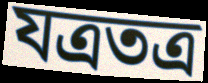
যত্রতত্র